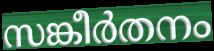
സങ്കീർതനം